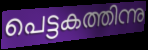
പെട്ടകത്തിന്നു